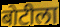
बोटीला